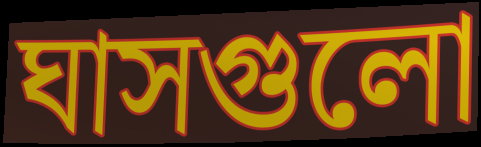
ঘাসগুলো